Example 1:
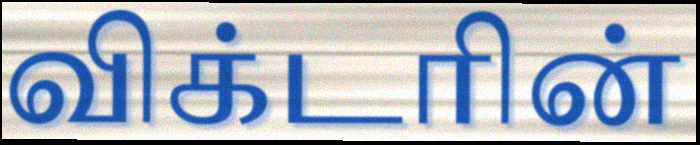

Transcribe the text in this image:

விக்டரின்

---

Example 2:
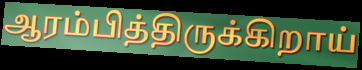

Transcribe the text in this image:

ஆரம்பித்திருக்கிறாய்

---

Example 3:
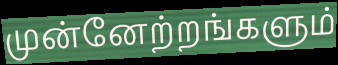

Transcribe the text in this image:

முன்னேற்றங்களும்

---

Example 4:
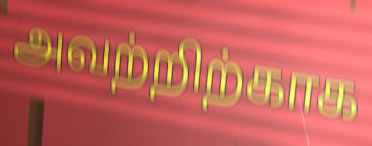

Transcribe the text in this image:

அவற்றிற்காக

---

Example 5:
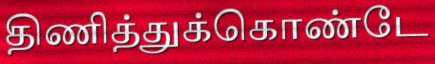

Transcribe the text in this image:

திணித்துக்கொண்டே